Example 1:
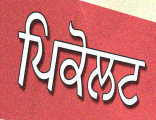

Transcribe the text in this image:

ਪਿਕੋਲਟ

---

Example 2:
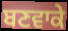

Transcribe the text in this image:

ਬਣਵਾਕੇ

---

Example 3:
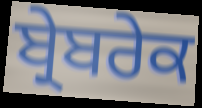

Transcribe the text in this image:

ਬ੍ਰੇਬਰੇਕ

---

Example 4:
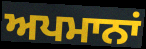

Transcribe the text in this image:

ਅਪਮਾਨਾਂ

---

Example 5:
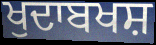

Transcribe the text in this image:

ਖੁਦਾਬਖਸ਼